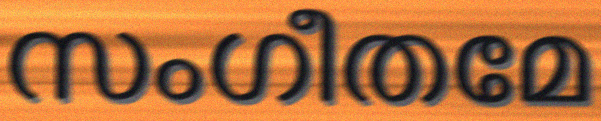
സംഗീതമേ